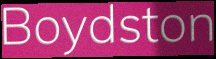
Boydston